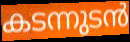
കടന്നുടൻ